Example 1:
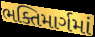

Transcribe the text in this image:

ભક્તિમાર્ગમાં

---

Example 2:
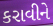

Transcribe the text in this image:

કરાવીને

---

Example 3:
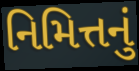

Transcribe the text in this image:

નિમિત્તનું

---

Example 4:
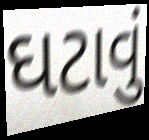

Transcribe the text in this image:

ઘટાવું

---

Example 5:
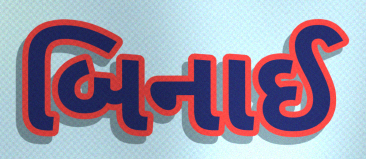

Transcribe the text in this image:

બિનાઈ